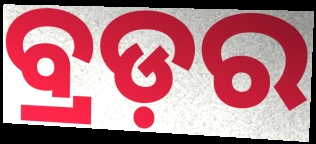
ବ୍ରଡ଼ର